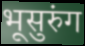
भूसुरुंग